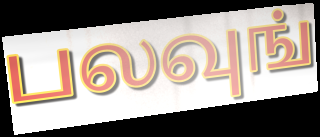
பலவுங்